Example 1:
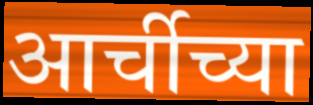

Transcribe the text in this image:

आर्चीच्या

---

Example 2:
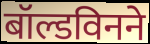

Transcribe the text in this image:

बॉल्डविनने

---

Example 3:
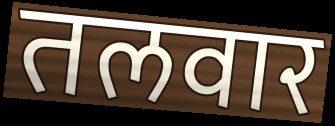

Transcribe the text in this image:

तलवार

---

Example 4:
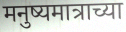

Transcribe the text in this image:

मनुष्यमात्राच्या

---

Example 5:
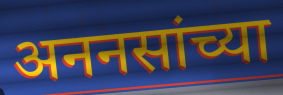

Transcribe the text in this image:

अननसांच्या